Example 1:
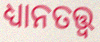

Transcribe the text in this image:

ଧ୍ୟାନତତ୍ତ୍ୱ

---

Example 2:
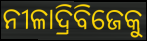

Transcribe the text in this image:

ନୀଳାଦ୍ରିବିଜେକୁ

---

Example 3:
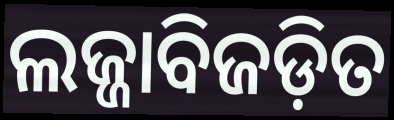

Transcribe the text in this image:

ଲଜ୍ଜାବିଜଡ଼ିତ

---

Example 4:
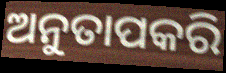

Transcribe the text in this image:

ଅନୁତାପକରି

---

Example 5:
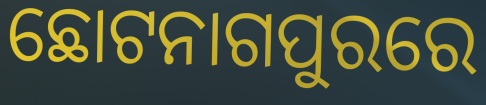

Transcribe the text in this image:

ଛୋଟନାଗପୁରରେ